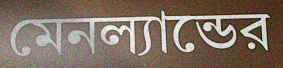
মেনল্যান্ডের